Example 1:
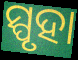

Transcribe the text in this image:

ସ୍ପୃହା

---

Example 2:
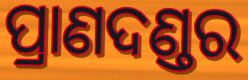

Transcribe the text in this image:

ପ୍ରାଣଦଣ୍ଡର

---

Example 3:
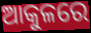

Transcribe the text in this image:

ଆକୁଳରେ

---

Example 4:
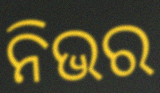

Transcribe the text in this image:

ନିଭର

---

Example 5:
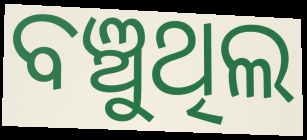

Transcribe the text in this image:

ବଞ୍ଚୁଥିଲ